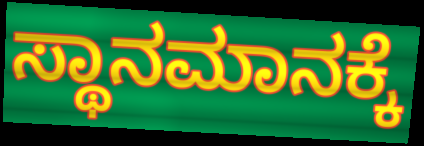
ಸ್ಥಾನಮಾನಕ್ಕೆ